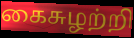
கைசுழற்றி